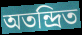
অতন্দ্রিত